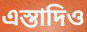
এস্তাদিও